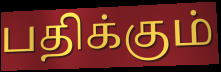
பதிக்கும்